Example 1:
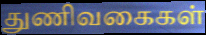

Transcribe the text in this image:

துணிவகைகள்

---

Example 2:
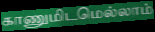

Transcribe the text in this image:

காணுமிடமெல்லாம்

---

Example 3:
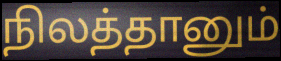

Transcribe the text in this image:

நிலத்தானும்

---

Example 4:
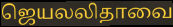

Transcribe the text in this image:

ஜெயலலிதாவை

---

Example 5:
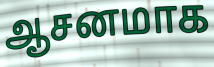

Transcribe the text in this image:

ஆசனமாக